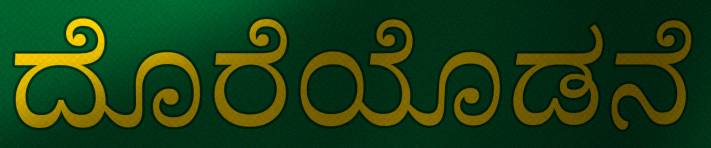
ದೊರೆಯೊಡನೆ